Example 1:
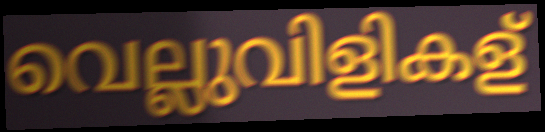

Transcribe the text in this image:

വെല്ലുവിളികള്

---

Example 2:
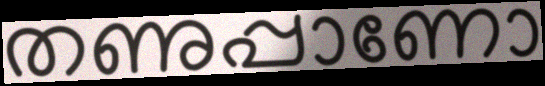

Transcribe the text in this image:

തണുപ്പാണോ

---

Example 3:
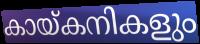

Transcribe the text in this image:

കായ്കനികളും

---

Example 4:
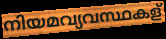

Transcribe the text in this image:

നിയമവ്യവസ്ഥകള്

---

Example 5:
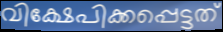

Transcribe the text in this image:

വിക്ഷേപിക്കപ്പെട്ടത്